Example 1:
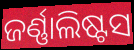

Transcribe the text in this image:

ଜର୍ଣ୍ଣାଲିଷ୍ଟସ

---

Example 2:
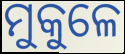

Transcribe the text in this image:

ମୁକୁଳେ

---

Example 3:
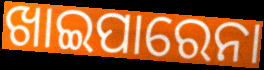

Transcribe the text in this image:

ଖାଇପାରେନା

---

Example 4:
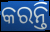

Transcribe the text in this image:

କରନ୍ତି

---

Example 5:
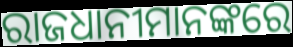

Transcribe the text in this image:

ରାଜଧାନୀମାନଙ୍କରେ